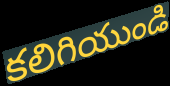
కలిగియుండి